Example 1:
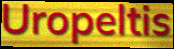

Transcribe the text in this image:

Uropeltis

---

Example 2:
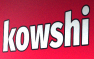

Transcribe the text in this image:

kowshi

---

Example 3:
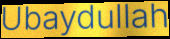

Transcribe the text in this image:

Ubaydullah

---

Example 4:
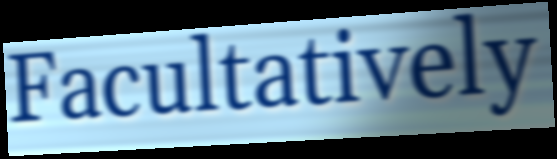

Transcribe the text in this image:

Facultatively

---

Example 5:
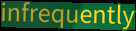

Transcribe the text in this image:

infrequently